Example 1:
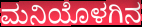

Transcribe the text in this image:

ಮನಿಯೊಳಗಿನ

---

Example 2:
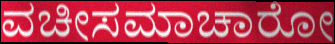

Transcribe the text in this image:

ವಚೀಸಮಾಚಾರೋ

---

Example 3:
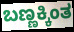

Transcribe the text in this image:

ಬಣ್ಣಕ್ಕಿಂತ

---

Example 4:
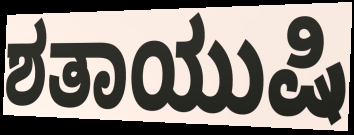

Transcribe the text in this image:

ಶತಾಯುಷಿ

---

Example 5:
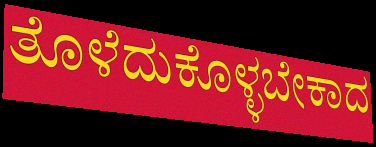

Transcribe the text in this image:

ತೊಳೆದುಕೊಳ್ಳಬೇಕಾದ